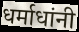
धर्माधांनी